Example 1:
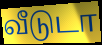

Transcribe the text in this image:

வீடுடா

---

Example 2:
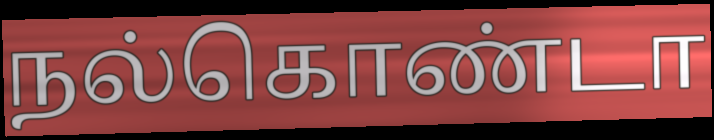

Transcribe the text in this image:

நல்கொண்டா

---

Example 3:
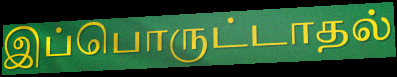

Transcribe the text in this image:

இப்பொருட்டாதல்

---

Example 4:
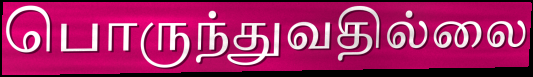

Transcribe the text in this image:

பொருந்துவதில்லை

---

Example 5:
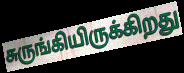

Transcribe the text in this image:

சுருங்கியிருக்கிறது